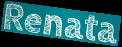
Renata